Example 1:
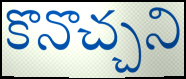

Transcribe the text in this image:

కొనొచ్చని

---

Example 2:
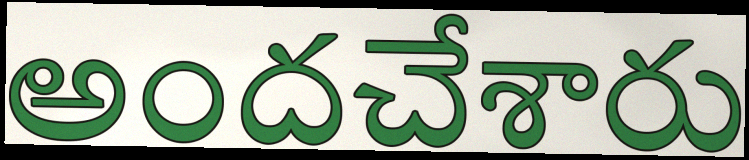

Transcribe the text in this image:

అందచేశారు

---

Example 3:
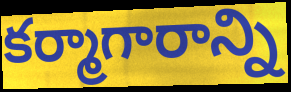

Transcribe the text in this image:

కర్మాగారాన్ని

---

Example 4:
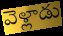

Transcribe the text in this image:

వెళ్లాడు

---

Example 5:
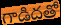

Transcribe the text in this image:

గాడిదతో